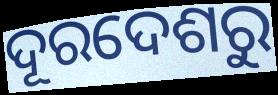
ଦୂରଦେଶରୁ